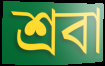
শ্রবা